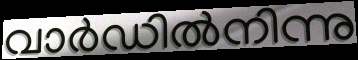
വാർഡിൽനിന്നു